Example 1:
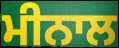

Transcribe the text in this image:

ਮੀਨਾਲ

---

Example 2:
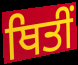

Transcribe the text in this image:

ਥਿਤੀਂ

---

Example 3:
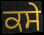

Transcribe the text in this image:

ਕਸੇ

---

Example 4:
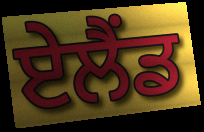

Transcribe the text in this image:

ਏਲੈਂਡ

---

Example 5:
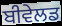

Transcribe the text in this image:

ਬੀਵੇਲਡ